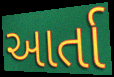
આર્તા